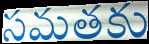
సమతకు